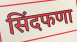
सिंदफणा